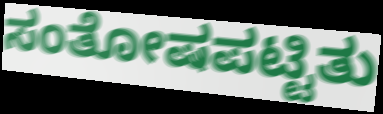
ಸಂತೋಷಪಟ್ಟಿತು